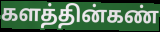
களத்தின்கண்